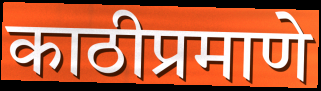
काठीप्रमाणे